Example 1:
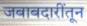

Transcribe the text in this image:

जबाबदारींतून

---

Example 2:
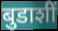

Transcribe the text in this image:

बुडाशीं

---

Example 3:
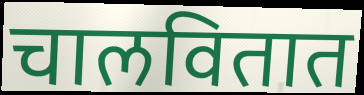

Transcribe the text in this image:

चालवितात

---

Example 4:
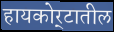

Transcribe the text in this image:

हायकोर्टातील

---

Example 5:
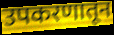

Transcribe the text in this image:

उपकरणातून